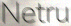
Netru